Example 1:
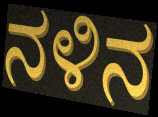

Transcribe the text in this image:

ನಳಿನ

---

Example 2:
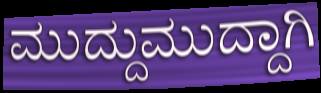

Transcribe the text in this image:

ಮುದ್ದುಮುದ್ದಾಗಿ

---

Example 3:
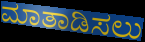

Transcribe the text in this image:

ಮಾತಾಡಿಸಲು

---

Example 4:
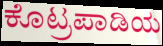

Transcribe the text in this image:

ಕೊಟ್ರಪಾಡಿಯ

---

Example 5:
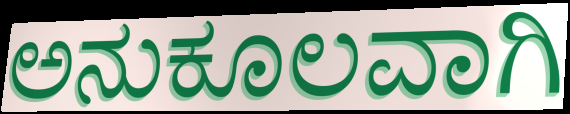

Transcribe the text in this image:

ಅನುಕೂಲವಾಗಿ